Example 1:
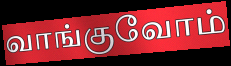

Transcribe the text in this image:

வாங்குவோம்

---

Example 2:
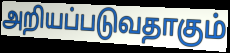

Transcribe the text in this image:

அறியப்படுவதாகும்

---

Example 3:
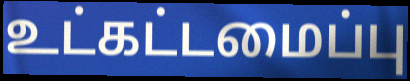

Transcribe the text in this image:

உட்கட்டமைப்பு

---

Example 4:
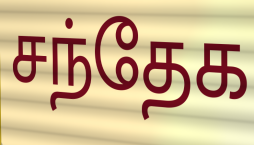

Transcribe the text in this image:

சந்தேக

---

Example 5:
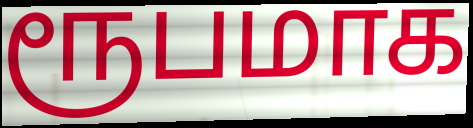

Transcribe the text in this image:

ரூபமாக